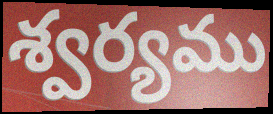
శ్వర్యము